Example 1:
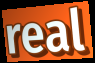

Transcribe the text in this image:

real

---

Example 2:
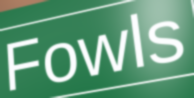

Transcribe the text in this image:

Fowls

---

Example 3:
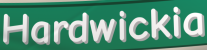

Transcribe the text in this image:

Hardwickia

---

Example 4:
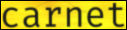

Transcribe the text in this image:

carnet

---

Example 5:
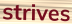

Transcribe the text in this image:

strives